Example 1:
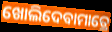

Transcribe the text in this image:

ଖୋଲିଦେବାମାତ୍ରେ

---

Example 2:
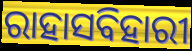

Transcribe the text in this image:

ରାହାସବିହାରୀ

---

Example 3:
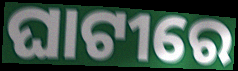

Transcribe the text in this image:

ଘାଟୀରେ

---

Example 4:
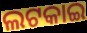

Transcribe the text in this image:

ଲଟକାଇ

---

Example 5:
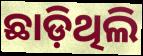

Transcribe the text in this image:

ଛାଡ଼ିଥିଲି